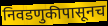
निवडणुकीपासूनच